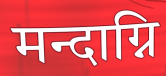
मन्दाग्नि